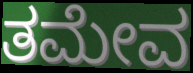
ತಮೇವ